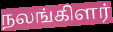
நலங்கிளர்